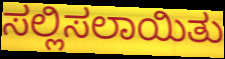
ಸಲ್ಲಿಸಲಾಯಿತು